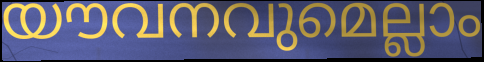
യൗവനവുമെല്ലാം